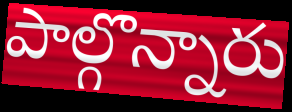
పాల్గొన్నారు